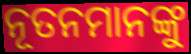
ନୂତନମାନଙ୍କୁ